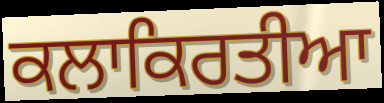
ਕਲਾਕਿਰਤੀਆ